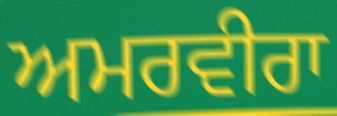
ਅਮਰਵੀਰਾ